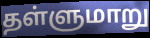
தள்ளுமாறு